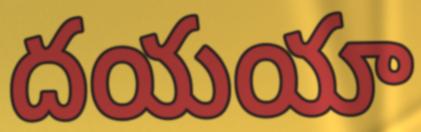
దయయా